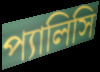
প্যালিসি